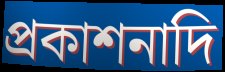
প্রকাশনাদি